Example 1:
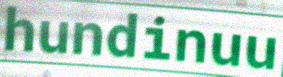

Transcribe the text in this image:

hundinuu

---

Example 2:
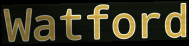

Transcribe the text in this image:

Watford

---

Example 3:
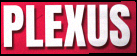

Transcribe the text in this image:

PLEXUS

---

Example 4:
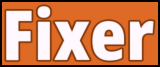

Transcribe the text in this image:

Fixer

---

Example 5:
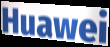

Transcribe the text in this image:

Huawei